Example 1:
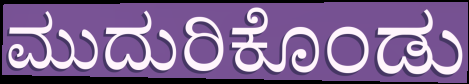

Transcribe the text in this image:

ಮುದುರಿಕೊಂಡು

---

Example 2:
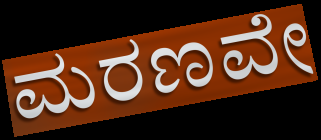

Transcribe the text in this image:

ಮರಣವೇ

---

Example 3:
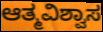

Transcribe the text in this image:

ಆತ್ಮವಿಶ್ವಾಸ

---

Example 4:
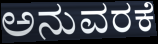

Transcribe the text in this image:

ಅನುವರಕೆ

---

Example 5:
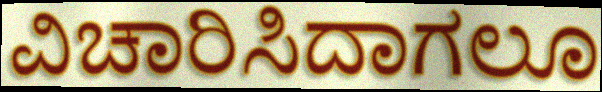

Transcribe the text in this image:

ವಿಚಾರಿಸಿದಾಗಲೂ